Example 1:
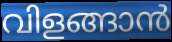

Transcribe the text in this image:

വിളങ്ങാൻ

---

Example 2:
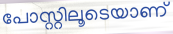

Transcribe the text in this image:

പോസ്റ്റിലൂടെയാണ്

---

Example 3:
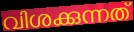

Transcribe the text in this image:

വിശക്കുന്നത്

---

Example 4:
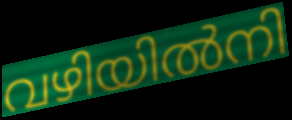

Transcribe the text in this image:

വഴിയിൽനി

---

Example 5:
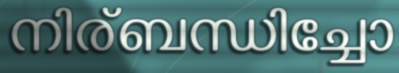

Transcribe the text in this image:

നിര്ബന്ധിച്ചോ